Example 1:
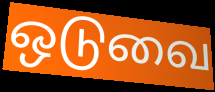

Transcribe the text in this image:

ஒடுவை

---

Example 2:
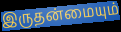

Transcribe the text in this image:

இருதன்மையும்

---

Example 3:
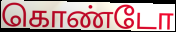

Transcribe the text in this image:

கொண்டோ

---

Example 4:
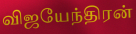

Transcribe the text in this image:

விஜயேந்திரன்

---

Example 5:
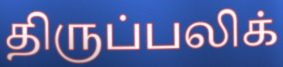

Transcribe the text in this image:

திருப்பலிக்